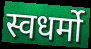
स्वधर्मो